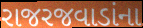
રાજરજવાડાંના